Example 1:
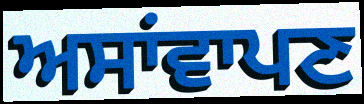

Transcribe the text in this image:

ਅਸਾਂਵਾਪਣ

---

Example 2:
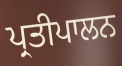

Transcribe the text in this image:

ਪ੍ਰਤੀਪਾਲਨ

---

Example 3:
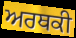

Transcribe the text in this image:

ਅਰਥਕੀ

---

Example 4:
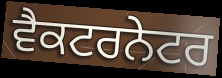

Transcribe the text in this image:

ਵੈਕਟਰਨੇਟਰ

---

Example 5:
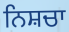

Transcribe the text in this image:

ਨਿਸ਼ਚਾ